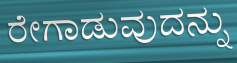
ರೇಗಾಡುವುದನ್ನು